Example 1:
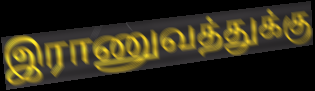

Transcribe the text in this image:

இராணுவத்துக்கு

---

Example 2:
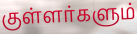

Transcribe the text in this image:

குள்ளர்களும்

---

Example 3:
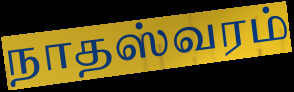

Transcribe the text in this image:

நாதஸ்வரம்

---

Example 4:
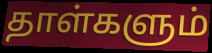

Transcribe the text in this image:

தாள்களும்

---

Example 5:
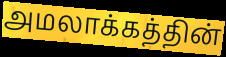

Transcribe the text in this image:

அமலாக்கத்தின்